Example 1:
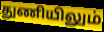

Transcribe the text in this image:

துணியிலும்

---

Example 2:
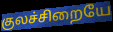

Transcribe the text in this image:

குலச்சிறையே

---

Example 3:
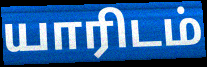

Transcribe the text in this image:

யாரிடம்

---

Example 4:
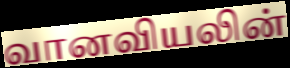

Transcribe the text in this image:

வானவியலின்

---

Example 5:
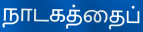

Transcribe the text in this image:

நாடகத்தைப்